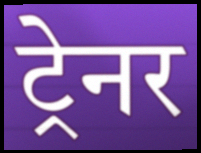
ट्रेनर